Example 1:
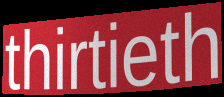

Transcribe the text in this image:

thirtieth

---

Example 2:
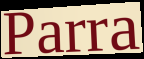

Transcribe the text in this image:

Parra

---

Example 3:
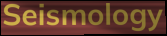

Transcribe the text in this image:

Seismology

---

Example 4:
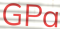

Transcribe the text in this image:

GPa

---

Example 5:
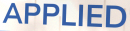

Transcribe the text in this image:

APPLIED